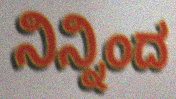
ನಿನ್ನಿಂದ